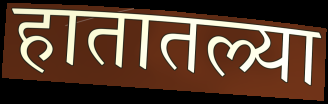
हातातल्या